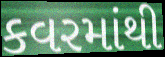
કવરમાંથી